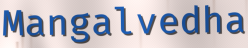
Mangalvedha